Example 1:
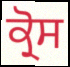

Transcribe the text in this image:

ਕ੍ਰੋਸ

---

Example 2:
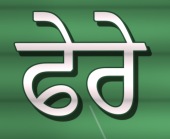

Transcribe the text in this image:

ਫੇਰੇ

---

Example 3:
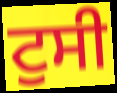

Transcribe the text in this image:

ਟੁਸੀ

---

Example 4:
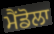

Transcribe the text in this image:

ਮੈਂਡੋਲਾ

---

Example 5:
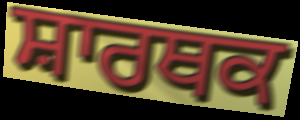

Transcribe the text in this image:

ਸ਼ਾਰਥਕ